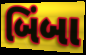
બિંબા